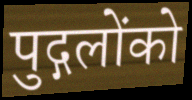
पुद्गलोंको